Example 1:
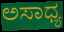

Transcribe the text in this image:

ಅಸಾಧ್ಯ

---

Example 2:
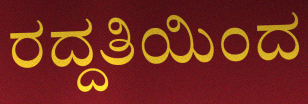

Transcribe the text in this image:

ರದ್ದತಿಯಿಂದ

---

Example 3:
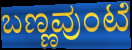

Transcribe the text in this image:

ಬಣ್ಣವುಂಟೆ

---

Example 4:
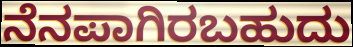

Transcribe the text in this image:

ನೆನಪಾಗಿರಬಹುದು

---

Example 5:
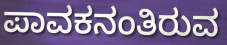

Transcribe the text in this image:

ಪಾವಕನಂತಿರುವ